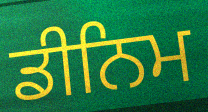
ਡੀਨਿਮ